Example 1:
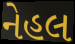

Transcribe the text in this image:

નેહલ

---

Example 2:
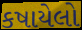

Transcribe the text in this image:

કષાયેલો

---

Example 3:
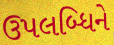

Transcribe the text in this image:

ઉપલબ્ધિને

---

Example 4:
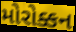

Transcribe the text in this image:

મોરોક્કન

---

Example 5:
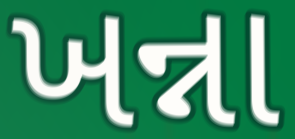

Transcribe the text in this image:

ખન્ના